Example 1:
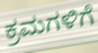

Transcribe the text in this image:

ಕ್ರಮಗಳಿಗೆ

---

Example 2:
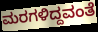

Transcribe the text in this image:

ಮರಗಳಿದ್ದವಂತೆ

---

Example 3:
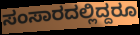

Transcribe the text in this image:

ಸಂಸಾರದಲ್ಲಿದ್ದರೂ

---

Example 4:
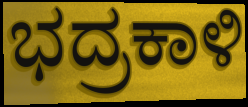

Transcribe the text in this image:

ಭದ್ರಕಾಳಿ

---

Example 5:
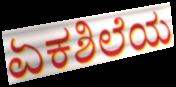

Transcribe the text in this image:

ಏಕಶಿಲೆಯ